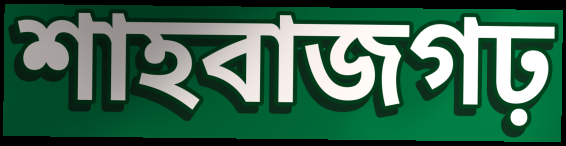
শাহবাজগঢ়